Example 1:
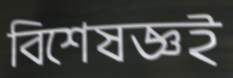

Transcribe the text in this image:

বিশেষজ্ঞই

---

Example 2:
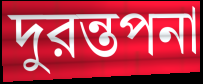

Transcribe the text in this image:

দুরন্তপনা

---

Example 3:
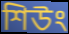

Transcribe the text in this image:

শিউং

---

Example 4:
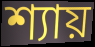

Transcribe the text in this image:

শ্যায়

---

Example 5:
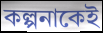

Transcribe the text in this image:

কল্পনাকেই